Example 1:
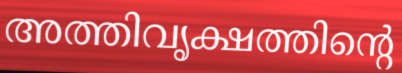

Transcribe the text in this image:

അത്തിവൃക്ഷത്തിന്റെ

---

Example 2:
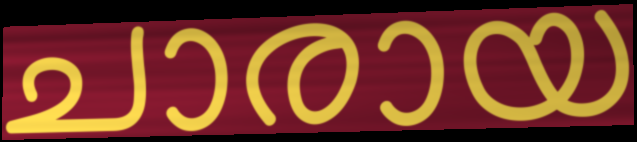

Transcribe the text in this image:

ചാരായ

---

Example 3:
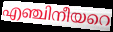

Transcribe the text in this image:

എഞ്ചിനീയറെ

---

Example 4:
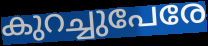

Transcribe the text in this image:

കുറച്ചുപേരേ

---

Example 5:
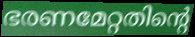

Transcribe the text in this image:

ഭരണമേറ്റതിന്റെ